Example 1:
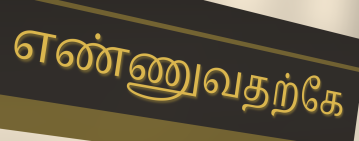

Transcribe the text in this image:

எண்ணுவதற்கே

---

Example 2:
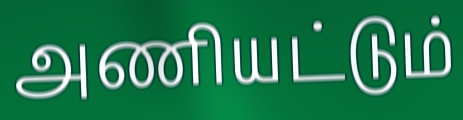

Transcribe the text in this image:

அணியட்டும்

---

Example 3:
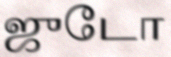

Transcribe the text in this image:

ஜுடோ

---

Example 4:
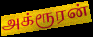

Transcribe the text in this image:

அக்ரூரன்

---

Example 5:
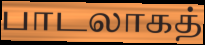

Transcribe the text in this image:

பாடலாகத்